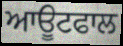
ਆਊਟਫਾਲ